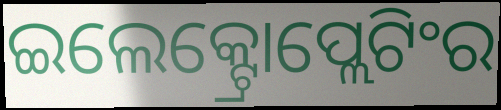
ଇଲେକ୍ଟ୍ରୋପ୍ଲେଟିଂର